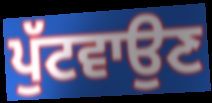
ਪੁੱਟਵਾਉਣ